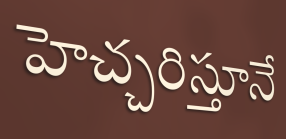
హెచ్చరిస్తూనే